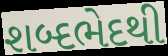
શબ્દભેદથી